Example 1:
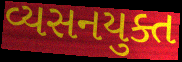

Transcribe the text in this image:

વ્યસનયુક્ત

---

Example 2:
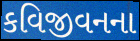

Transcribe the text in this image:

કવિજીવનના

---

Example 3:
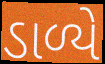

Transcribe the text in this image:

ડાળ્યે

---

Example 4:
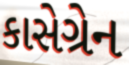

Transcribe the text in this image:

કાસેગ્રેન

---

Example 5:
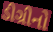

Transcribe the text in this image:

ડીગ્રીનો